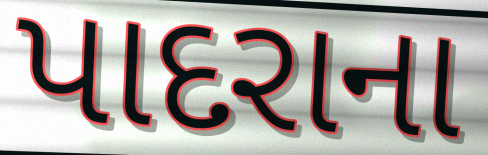
પાદરાના